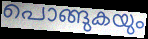
പൊങ്ങുകയും